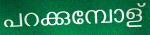
പറക്കുമ്പോള്